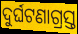
ଦୁର୍ଘଟଣାଗ୍ରସ୍ତ